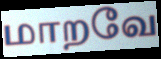
மாறவே